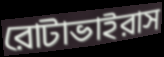
রোটাভাইরাস